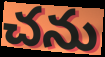
చను